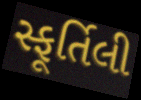
સ્ફૂર્તિલી